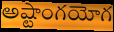
అష్టాంగయోగ